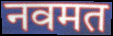
नवमत